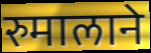
रुमालाने